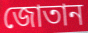
জোতান